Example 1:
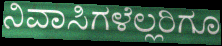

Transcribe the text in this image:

ನಿವಾಸಿಗಳೆಲ್ಲರಿಗೂ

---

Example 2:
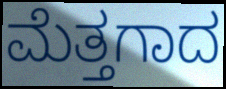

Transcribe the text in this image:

ಮೆತ್ತಗಾದ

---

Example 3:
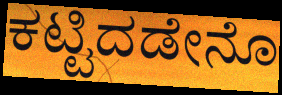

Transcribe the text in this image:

ಕಟ್ಟಿದಡೇನೊ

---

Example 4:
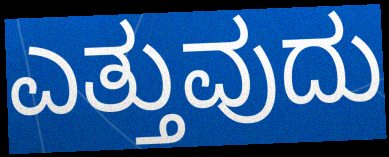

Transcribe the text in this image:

ಎತ್ತುವುದು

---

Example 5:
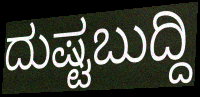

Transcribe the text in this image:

ದುಷ್ಟಬುದ್ದಿ